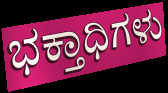
ಭಕ್ತಾಧಿಗಳು